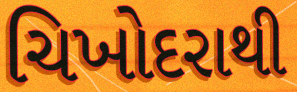
ચિખોદરાથી